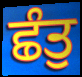
ਛੰਤੁ